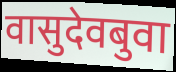
वासुदेवबुवा